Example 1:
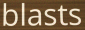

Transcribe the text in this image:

blasts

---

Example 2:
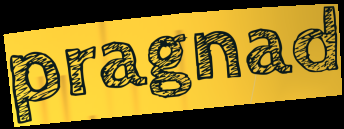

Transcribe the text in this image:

pragnad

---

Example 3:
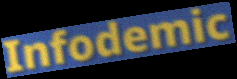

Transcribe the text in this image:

Infodemic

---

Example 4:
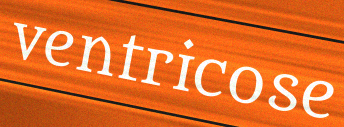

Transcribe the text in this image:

ventricose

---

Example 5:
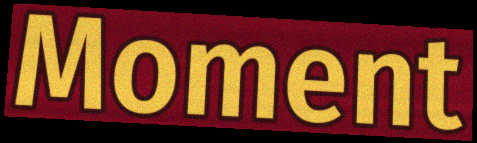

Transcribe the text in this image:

Moment